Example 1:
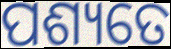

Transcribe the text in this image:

ପଶ୍ୟତେ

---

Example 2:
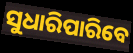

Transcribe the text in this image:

ସୁଧାରିପାରିବେ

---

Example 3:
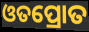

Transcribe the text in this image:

ଓତପ୍ରୋତ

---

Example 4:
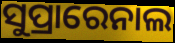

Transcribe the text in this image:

ସୁପ୍ରାରେନାଲ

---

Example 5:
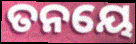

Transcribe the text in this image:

ତନୟେ